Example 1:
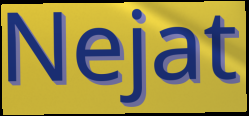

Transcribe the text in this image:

Nejat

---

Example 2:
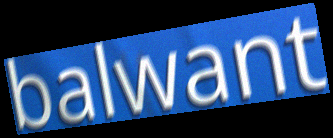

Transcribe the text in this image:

balwant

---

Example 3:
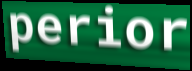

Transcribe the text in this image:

perior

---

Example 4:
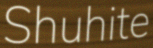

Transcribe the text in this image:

Shuhite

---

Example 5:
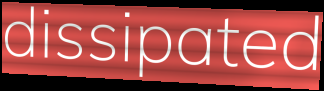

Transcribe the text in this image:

dissipated